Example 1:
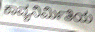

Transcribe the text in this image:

ಕಾವ್ಯನಿರ್ಮಿತಿಯ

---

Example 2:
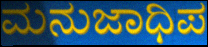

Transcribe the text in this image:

ಮನುಜಾಧಿಪ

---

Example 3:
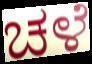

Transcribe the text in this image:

ಚಳೆ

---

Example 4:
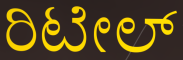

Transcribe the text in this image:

ರಿಟೇಲ್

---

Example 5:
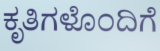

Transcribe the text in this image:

ಕೃತಿಗಳೊಂದಿಗೆ